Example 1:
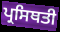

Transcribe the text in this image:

ਪ੍ਰਸਿਥਤੀ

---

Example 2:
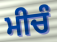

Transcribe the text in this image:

ਮੀਚੰ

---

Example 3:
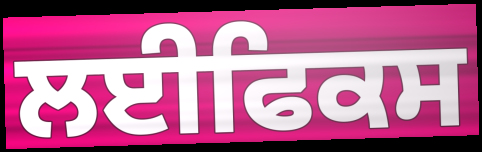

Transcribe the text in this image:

ਲਈਫਿਕਸ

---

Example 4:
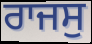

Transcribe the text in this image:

ਰਾਜਸੁ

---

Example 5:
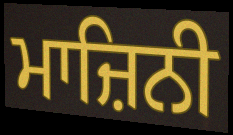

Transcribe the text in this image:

ਮਾਜ਼ਿਨੀ